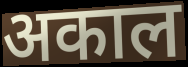
अकाल